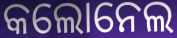
କଲୋନେଲ